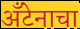
अँटेनाचा